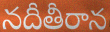
నదీతీరాన